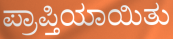
ಪ್ರಾಪ್ತಿಯಾಯಿತು